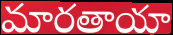
మారతాయా